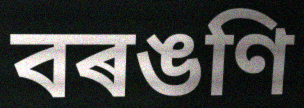
বৰঙণি